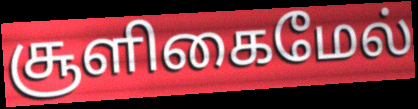
சூளிகைமேல்